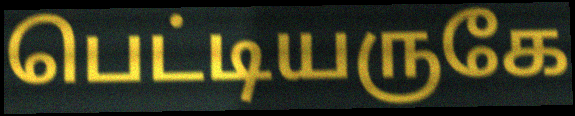
பெட்டியருகே